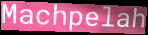
Machpelah